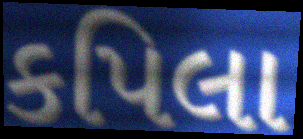
કપિલા